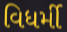
વિધર્મી